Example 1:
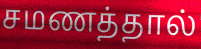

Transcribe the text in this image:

சமணத்தால்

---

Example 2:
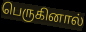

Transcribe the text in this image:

பெருகினால்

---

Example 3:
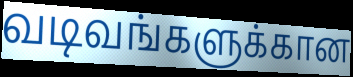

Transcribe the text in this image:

வடிவங்களுக்கான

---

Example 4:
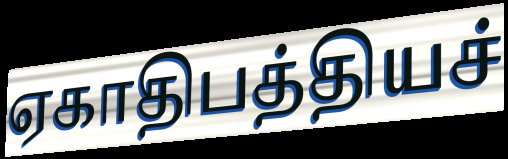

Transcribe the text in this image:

ஏகாதிபத்தியச்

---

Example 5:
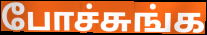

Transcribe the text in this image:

போச்சுங்க